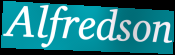
Alfredson